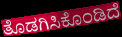
ತೊಡಗಿಸಿಕೊಂಡಿದೆ